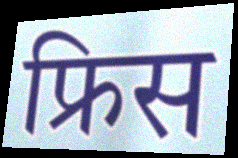
फ्रिस